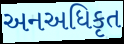
અનઅધિકૃત